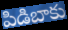
పిడిబాకు